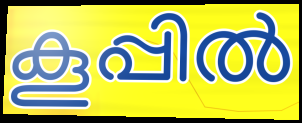
കൂപ്പിൽ